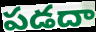
పడదా